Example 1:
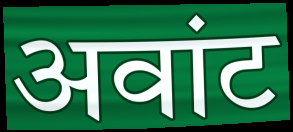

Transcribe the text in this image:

अवांट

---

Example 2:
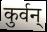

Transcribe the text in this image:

कुर्वन्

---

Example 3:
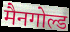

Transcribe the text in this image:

मैनगोल्ड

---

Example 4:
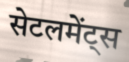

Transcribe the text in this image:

सेटलमेंट्स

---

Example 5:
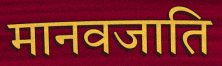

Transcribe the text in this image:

मानवजाति